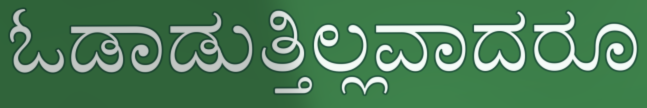
ಓಡಾಡುತ್ತಿಲ್ಲವಾದರೂ